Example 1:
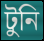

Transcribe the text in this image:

টুনি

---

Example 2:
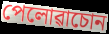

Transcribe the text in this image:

পেলোৱাচোন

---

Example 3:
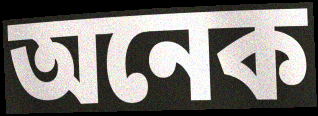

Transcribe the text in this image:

অনেক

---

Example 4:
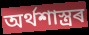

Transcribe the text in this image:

অৰ্থশাস্ত্ৰৰ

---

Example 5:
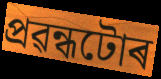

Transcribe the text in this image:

প্ৰৱন্ধটোৰ